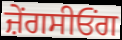
ਜ਼ੇਂਗਸੀਓਂਗ